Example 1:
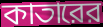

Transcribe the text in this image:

কাতারের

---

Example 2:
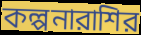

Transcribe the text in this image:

কল্পনারাশির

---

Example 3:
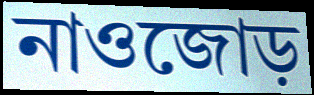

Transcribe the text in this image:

নাওজোড়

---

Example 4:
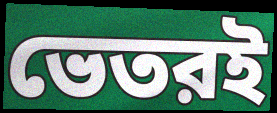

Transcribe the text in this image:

ভেতরই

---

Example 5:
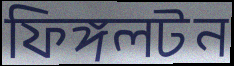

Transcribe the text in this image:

ফিঙ্গলটন